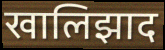
खालिझाद